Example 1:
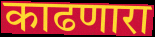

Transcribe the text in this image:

काढणारा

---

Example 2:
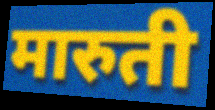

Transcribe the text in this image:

मारुती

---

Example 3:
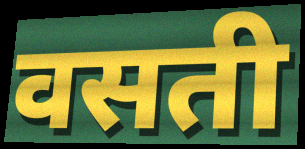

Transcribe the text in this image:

वसती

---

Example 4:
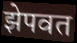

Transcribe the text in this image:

झेपवत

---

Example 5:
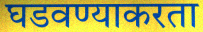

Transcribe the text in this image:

घडवण्याकरता